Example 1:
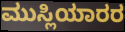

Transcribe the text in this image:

ಮುಸ್ಲಿಯಾರರ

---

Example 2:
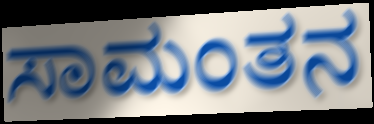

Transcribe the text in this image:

ಸಾಮಂತನ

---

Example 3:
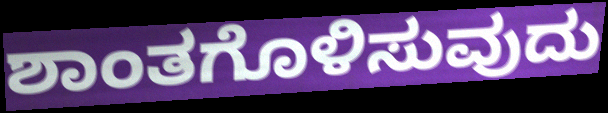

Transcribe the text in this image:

ಶಾಂತಗೊಳಿಸುವುದು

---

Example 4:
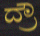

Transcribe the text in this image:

ದ್ರೌ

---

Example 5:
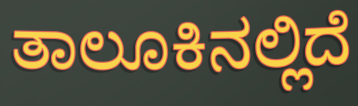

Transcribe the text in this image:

ತಾಲೂಕಿನಲ್ಲಿದೆ